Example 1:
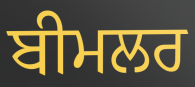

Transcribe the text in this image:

ਬੀਮਲਰ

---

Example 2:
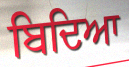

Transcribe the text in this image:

ਬਿਦਿਆ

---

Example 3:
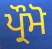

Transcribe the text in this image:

ਪ੍ਰੌਮੋ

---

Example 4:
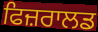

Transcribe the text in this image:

ਫਿਜ਼ਰਾਲਡ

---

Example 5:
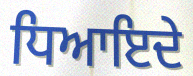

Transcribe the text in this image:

ਧਿਆਇਦੇ